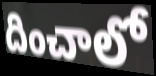
దించాలో